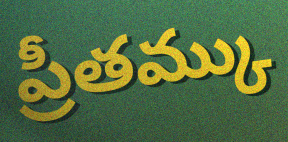
ప్రీతమ్కు